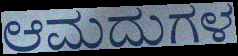
ಆಮದುಗಳ